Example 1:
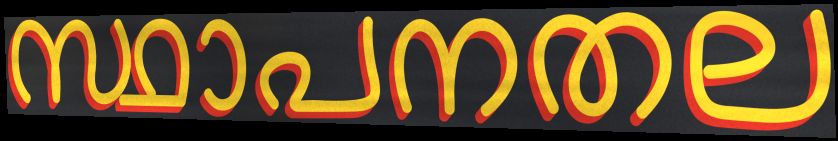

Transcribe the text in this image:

സ്ഥാപനതല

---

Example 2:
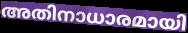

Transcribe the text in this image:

അതിനാധാരമായി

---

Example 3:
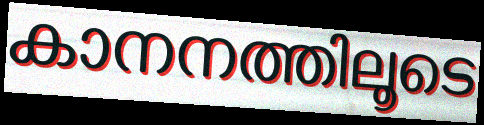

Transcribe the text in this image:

കാനനത്തിലൂടെ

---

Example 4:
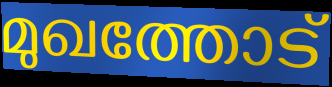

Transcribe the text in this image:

മുഖത്തോട്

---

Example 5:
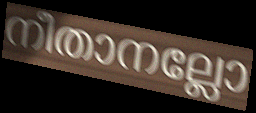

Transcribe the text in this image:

നീതാനല്ലോ